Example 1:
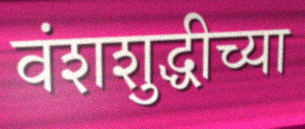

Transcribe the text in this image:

वंशशुद्धीच्या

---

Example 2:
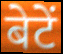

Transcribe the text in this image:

बेटें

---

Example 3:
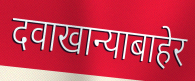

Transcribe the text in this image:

दवाखान्याबाहेर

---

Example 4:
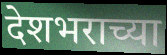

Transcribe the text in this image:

देशभराच्या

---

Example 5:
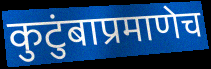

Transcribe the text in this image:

कुटुंबाप्रमाणेच